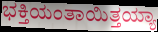
ಭಕ್ತಿಯಂತಾಯಿತ್ತಯ್ಯಾ